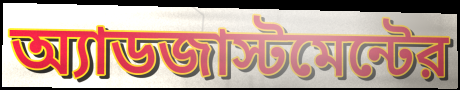
অ্যাডজাস্টমেন্টের